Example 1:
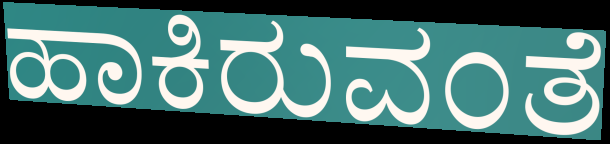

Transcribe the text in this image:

ಹಾಕಿರುವಂತೆ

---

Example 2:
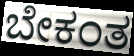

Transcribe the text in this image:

ಬೇಕಂತ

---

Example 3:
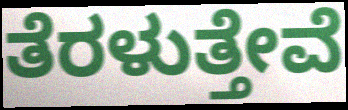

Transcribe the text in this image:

ತೆರಳುತ್ತೇವೆ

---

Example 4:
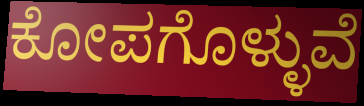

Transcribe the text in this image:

ಕೋಪಗೊಳ್ಳುವೆ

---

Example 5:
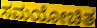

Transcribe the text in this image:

ಸಮಯೋಚಿತ